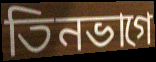
তিনভাগে